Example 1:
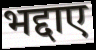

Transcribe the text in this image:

भद्दाए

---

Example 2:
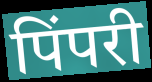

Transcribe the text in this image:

पिंपरी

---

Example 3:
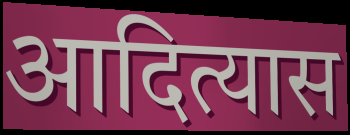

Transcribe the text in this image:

आदित्यास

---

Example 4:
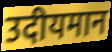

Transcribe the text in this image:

उदीयमान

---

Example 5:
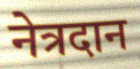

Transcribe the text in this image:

नेत्रदान